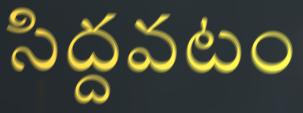
సిద్దవటం